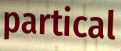
partical